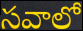
సవాలో